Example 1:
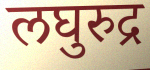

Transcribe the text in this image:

लघुरुद्र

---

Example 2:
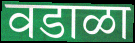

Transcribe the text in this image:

वडाळा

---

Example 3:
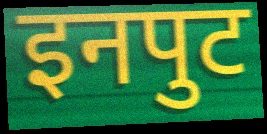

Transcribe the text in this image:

इनपुट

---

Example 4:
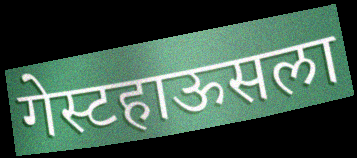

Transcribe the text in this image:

गेस्टहाऊसला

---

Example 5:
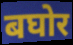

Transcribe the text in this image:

बघोर